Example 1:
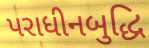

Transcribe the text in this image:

પરાધીનબુદ્ધિ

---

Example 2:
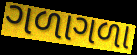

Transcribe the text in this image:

ગળાગળા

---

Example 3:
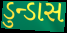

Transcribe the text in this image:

ડુન્ડાસ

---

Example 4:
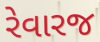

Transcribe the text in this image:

રેવારજ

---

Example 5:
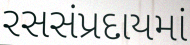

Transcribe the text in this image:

રસસંપ્રદાયમાં